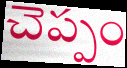
చెప్పం